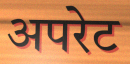
अपरेट